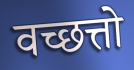
वच्छत्तो